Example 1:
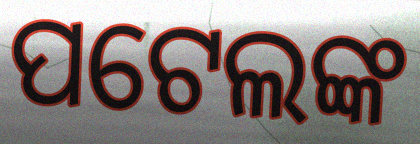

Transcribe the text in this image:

ପଟେଲଙ୍କ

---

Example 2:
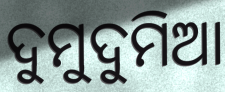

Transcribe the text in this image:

ଦୁମୁଦୁମିଆ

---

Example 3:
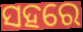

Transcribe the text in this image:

ସହରେ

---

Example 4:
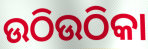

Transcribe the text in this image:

ଉଠିଉଠିକା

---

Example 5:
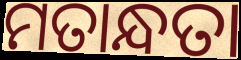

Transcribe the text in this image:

ମତାନ୍ଧତା